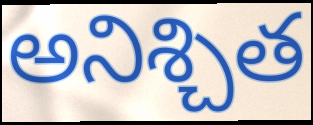
అనిశ్చిత